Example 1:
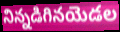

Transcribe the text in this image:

నిన్నడిగినయెడల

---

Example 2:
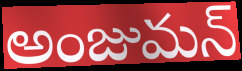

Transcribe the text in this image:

అంజుమన్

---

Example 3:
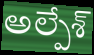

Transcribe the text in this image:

అల్పేశ్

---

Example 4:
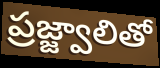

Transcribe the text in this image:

ప్రజ్జ్వాలితో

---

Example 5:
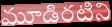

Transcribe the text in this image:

మూడిరటిని